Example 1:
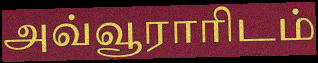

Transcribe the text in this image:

அவ்வூராரிடம்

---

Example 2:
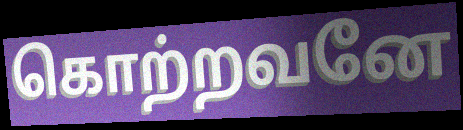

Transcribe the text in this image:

கொற்றவனே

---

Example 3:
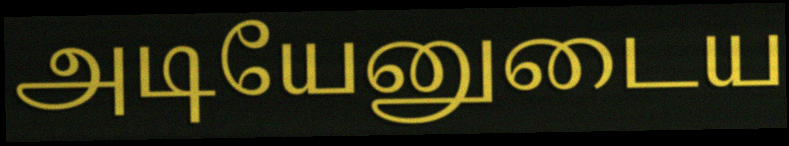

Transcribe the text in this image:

அடியேனுடைய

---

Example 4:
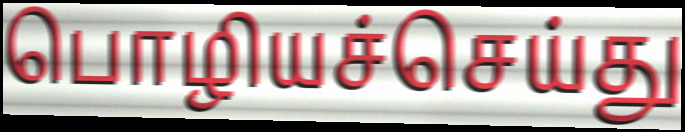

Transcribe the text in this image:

பொழியச்செய்து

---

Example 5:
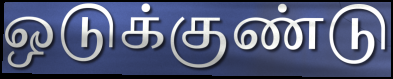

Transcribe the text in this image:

ஒடுக்குண்டு